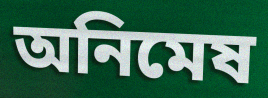
অনিমেষ